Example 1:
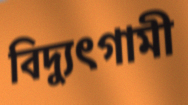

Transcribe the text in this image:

বিদ্যুৎগামী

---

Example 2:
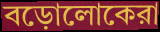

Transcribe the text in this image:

বড়োলোকেরা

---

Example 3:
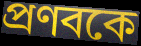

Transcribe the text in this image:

প্রণবকে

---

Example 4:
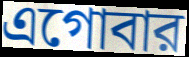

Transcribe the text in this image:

এগোবার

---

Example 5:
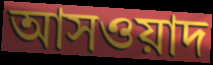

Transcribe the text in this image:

আসওয়াদ